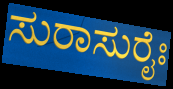
ಸುರಾಸುರೈಃ